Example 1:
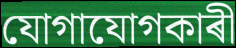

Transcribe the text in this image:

যোগাযোগকাৰী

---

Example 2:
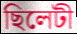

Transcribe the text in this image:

ছিলেটী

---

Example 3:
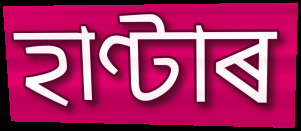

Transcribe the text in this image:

হাণ্টাৰ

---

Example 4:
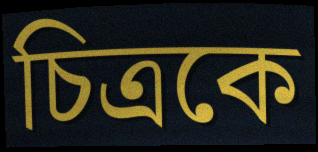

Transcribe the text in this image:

চিত্ৰকে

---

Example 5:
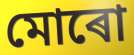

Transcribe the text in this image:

মোৰো